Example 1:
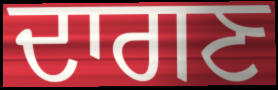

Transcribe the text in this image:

ਦਾਗਣ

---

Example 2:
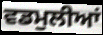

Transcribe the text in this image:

ਵਡਮੁਲੀਆਂ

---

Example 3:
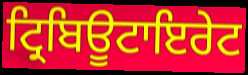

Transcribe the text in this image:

ਟ੍ਰਿਬਿਊਟਾਇਰੇਟ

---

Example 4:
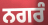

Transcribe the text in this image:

ਨਗਰੰ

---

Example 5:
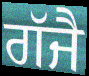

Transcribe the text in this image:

ਗੱਜੈ